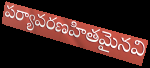
పర్యావరణహితమైనవి